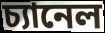
চ্যানেল